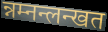
न्नम्नन्लन्खत